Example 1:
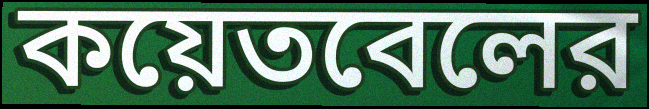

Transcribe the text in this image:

কয়েতবেলের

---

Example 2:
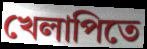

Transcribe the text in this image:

খেলাপিতে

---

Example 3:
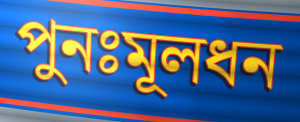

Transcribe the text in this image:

পুনঃমূলধন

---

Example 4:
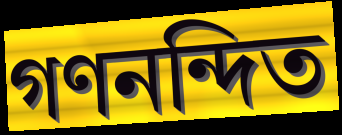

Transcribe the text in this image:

গণনন্দিত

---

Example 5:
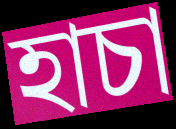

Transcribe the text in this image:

হাচা